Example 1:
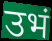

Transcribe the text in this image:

उभं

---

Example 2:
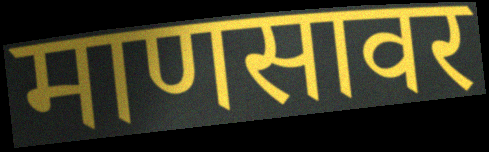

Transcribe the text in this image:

माणसावर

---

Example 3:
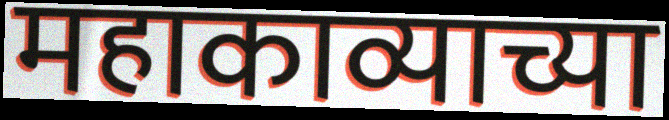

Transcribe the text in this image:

महाकाव्याच्या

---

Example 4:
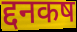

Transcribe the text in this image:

द्दनकष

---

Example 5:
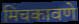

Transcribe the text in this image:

मिचकावणे